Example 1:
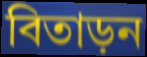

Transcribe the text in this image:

বিতাড়ন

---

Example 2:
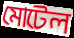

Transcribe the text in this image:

মোটেল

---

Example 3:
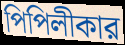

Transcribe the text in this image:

পিপিলীকার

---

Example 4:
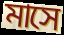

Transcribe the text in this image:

মাসে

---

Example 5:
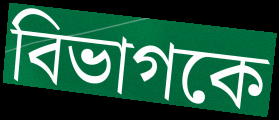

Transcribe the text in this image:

বিভাগকে